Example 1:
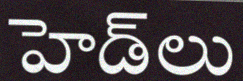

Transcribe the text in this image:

హెడ్‌లు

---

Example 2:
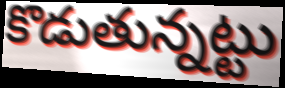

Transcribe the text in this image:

కొడుతున్నట్టు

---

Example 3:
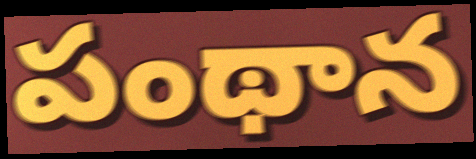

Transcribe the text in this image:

పంథాన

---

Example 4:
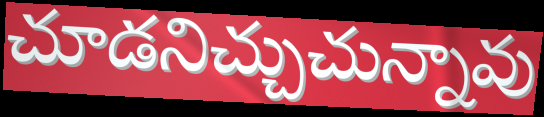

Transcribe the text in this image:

చూడనిచ్చుచున్నావు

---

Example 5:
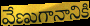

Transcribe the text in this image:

వేణుగానానికి